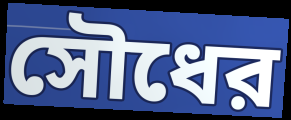
সৌধের